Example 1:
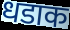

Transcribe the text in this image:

धडाक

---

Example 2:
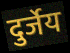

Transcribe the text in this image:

दुर्जेय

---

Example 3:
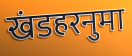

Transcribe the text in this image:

खंडहरनुमा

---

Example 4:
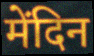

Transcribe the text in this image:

मेंदिन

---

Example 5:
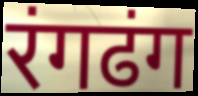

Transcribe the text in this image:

रंगढंग